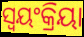
ସ୍ବୟଂକ୍ରିୟା